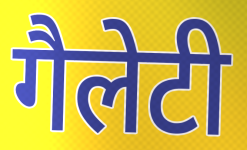
गैलेटी